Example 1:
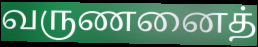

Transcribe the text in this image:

வருணனைத்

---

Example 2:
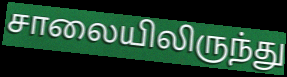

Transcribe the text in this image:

சாலையிலிருந்து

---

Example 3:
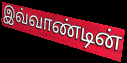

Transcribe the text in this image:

இவ்வாண்டின்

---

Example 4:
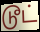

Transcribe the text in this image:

டூட்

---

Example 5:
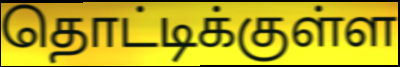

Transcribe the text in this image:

தொட்டிக்குள்ள